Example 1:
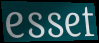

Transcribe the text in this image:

esset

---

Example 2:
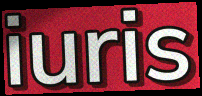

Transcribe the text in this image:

iuris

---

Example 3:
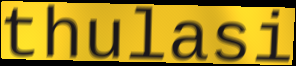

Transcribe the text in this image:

thulasi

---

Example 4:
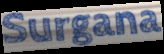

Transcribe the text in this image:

Surgana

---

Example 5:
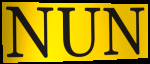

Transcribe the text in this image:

NUN